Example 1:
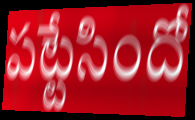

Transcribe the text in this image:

పట్టేసిందో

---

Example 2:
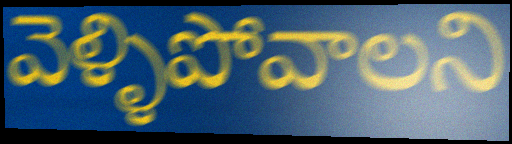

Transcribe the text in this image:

వెళ్ళిపోవాలని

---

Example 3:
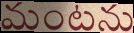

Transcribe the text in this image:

మంటను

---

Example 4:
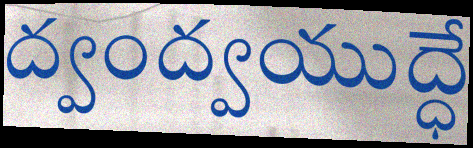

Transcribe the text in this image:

ద్వంద్వయుద్ధే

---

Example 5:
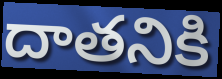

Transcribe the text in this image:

దాతనికి